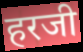
हरजी